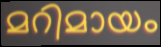
മറിമായം